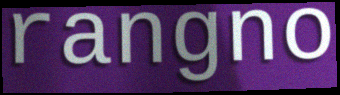
rangno